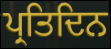
ਪ੍ਰਤਿਦਿਨ